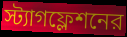
স্ট্যাগফ্লেশনের